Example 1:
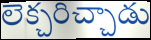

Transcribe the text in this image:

లెక్చరిచ్చాడు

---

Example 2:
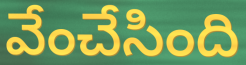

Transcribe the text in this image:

వేంచేసింది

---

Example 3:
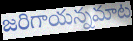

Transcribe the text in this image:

జరిగాయన్నమాట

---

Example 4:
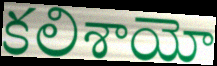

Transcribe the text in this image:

కలిశాయో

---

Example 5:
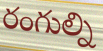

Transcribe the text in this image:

రంగుల్ని